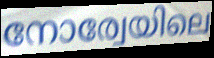
നോര്വേയിലെ